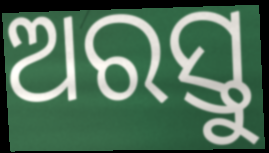
ଅରସ୍ତୁ